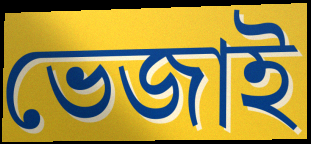
ভেজাই